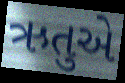
ઋતુએ